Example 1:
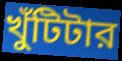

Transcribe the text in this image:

খুঁটিটার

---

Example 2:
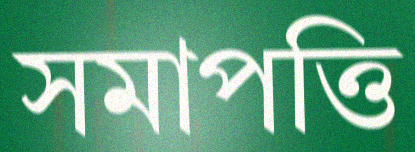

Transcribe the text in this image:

সমাপত্তি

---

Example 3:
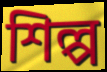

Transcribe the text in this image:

শিল্প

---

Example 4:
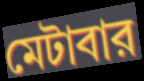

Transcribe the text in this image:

মেটাবার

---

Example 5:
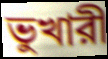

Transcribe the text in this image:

ভুখারী